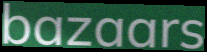
bazaars